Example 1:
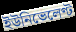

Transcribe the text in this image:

ইউনিভেলেণ্ট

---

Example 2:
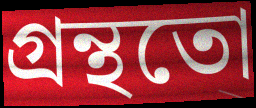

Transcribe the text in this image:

গ্ৰন্থতো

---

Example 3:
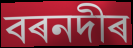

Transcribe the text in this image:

বৰনদীৰ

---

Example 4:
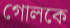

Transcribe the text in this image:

গোলকে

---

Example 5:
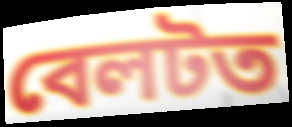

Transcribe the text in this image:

বেলটত